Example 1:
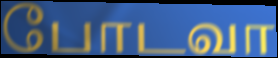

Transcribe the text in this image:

போடவா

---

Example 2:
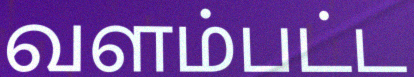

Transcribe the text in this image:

வளம்பட்ட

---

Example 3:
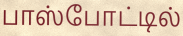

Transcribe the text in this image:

பாஸ்போட்டில்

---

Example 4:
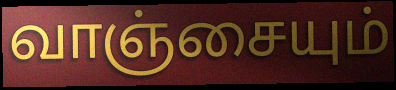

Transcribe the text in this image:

வாஞ்சையும்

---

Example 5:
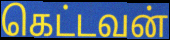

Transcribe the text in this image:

கெட்டவன்